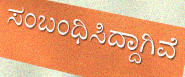
ಸಂಬಂಧಿಸಿದ್ದಾಗಿವೆ